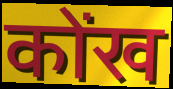
कोंख